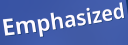
Emphasized